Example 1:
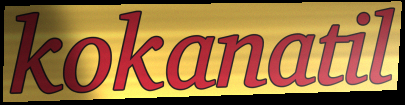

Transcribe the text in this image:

kokanatil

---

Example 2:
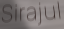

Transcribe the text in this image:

Sirajul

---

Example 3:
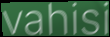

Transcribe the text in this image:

vahisi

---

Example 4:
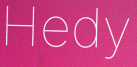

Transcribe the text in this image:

Hedy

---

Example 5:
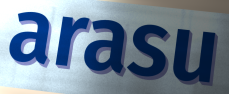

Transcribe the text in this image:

arasu